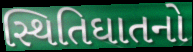
સ્થિતિઘાતનો